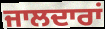
ਜਾਲਦਾਰਾਂ